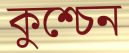
কুশ্চেন